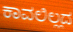
ಕಾವಲಿಲ್ಲದ